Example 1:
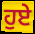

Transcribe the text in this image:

ਹੁਏ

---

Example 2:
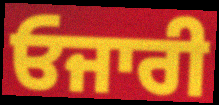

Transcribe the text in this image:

ਓਜਾਰੀ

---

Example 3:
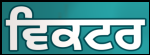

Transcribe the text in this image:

ਵਿਕਟਰ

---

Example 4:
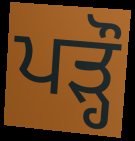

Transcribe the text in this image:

ਪੜ੍ਹੌ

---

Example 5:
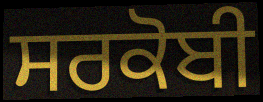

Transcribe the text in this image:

ਸਰਕੋਬੀ